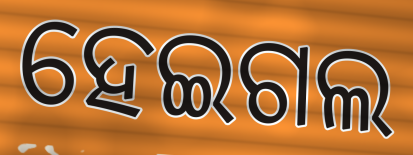
ହେଇଗଲ